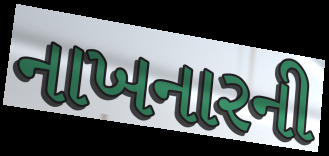
નાખનારની